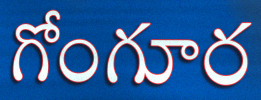
గోంగూర